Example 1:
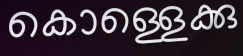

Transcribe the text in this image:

കൊള്ളെക്കു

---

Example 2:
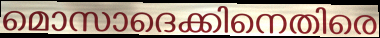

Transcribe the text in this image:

മൊസാദെക്കിനെതിരെ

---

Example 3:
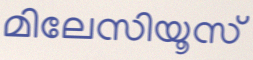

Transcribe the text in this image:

മിലേസിയൂസ്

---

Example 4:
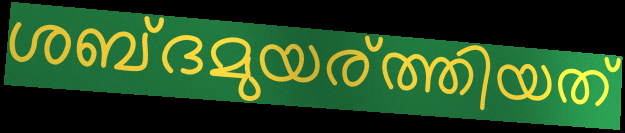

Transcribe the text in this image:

ശബ്ദമുയര്ത്തിയത്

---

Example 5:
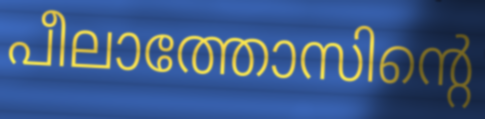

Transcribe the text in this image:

പീലാത്തോസിന്റെ